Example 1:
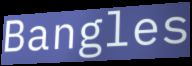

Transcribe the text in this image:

Bangles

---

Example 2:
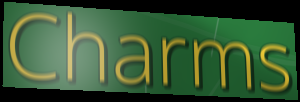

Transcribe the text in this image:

Charms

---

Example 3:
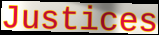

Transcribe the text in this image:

Justices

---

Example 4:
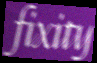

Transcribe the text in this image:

fixity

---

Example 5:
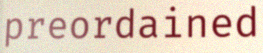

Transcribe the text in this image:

preordained